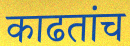
काढतांच